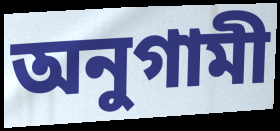
অনুগামী